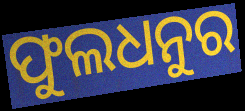
ଫୁଲଧନୁର